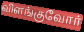
விளங்குவோர்